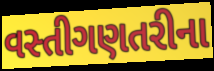
વસ્તીગણતરીના